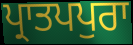
ਪ੍ਰਾਤਪਪੁਰਾ